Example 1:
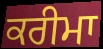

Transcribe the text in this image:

ਕਰੀਮਾ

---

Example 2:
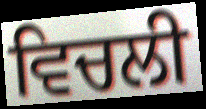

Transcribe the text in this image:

ਵਿਚਲੀ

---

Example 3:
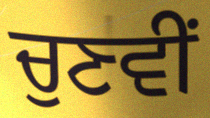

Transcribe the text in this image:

ਚੁਣਵੀਂ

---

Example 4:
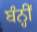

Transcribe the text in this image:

ਬੰਨ੍ਹੀਂ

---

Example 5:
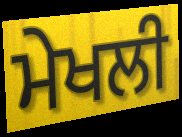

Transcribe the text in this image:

ਮੇਖਲੀ